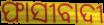
ଫାସୀବାଦୀ